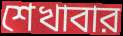
শেখাবার